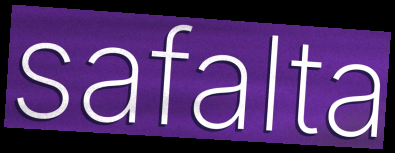
safalta